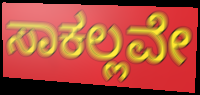
ಸಾಕಲ್ಲವೇ